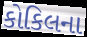
કોકિલના